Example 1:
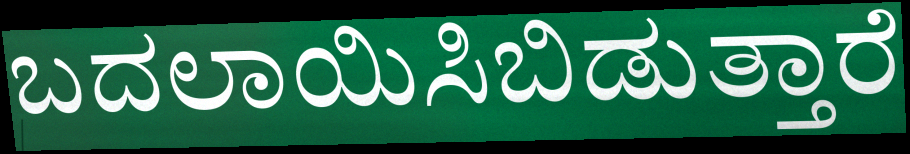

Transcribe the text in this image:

ಬದಲಾಯಿಸಿಬಿಡುತ್ತಾರೆ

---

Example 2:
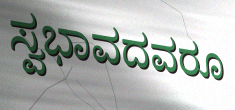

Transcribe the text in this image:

ಸ್ವಭಾವದವರೂ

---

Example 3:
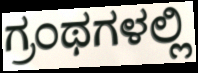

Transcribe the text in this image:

ಗ್ರಂಥಗಳಲ್ಲಿ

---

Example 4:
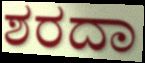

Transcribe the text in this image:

ಶರದಾ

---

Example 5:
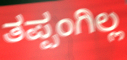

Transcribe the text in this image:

ತಪ್ಪಂಗಿಲ್ಲ